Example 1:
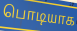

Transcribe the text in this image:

பொடியாக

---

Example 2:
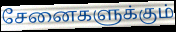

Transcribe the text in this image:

சேனைகளுக்கும்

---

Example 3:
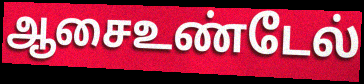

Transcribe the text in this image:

ஆசைஉண்டேல்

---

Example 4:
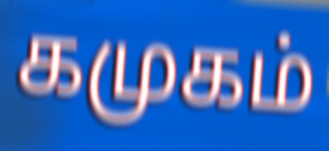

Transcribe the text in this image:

கமுகம்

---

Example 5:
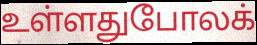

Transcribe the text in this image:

உள்ளதுபோலக்